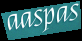
aaspas